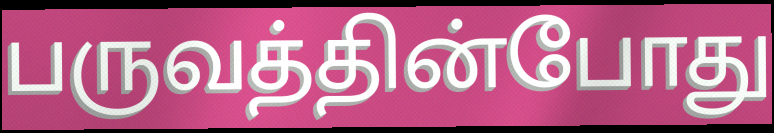
பருவத்தின்போது